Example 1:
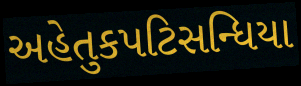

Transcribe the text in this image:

અહેતુકપટિસન્ધિયા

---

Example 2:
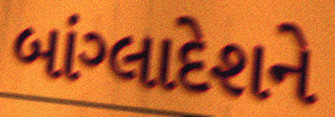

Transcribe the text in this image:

બાંગ્લાદેશને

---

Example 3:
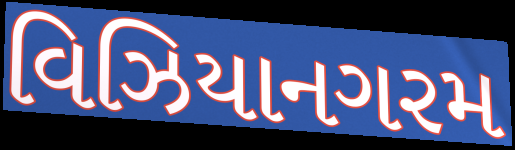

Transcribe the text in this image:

વિઝિયાનગરમ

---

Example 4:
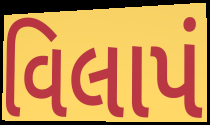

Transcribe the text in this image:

વિલાપં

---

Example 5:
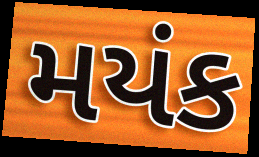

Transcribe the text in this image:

મયંક